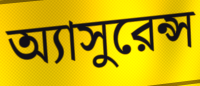
অ্যাসুরেন্স